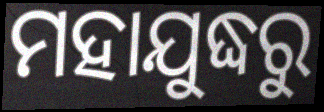
ମହାଯୁଦ୍ଧରୁ